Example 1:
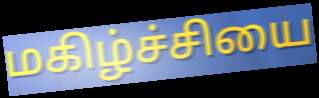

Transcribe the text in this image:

மகிழ்ச்சியை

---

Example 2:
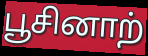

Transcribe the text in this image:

பூசினாற்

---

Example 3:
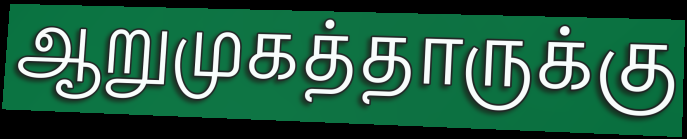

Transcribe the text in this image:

ஆறுமுகத்தாருக்கு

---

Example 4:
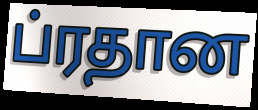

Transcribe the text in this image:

ப்ரதான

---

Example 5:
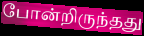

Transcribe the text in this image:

போன்றிருந்தது